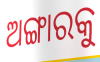
ଅଙ୍ଗାରକୁ